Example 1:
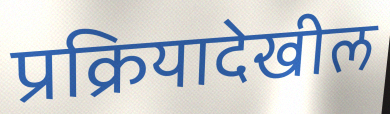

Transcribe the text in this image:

प्रक्रियादेखील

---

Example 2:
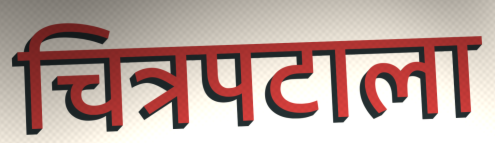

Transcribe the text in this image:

चित्रपटाला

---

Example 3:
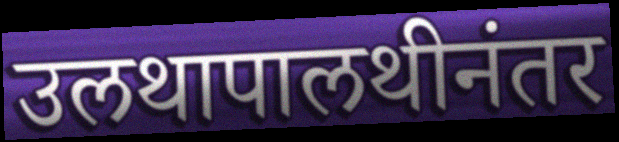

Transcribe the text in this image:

उलथापालथीनंतर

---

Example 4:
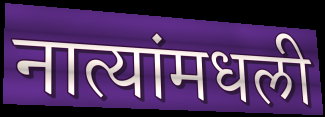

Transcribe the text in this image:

नात्यांमधली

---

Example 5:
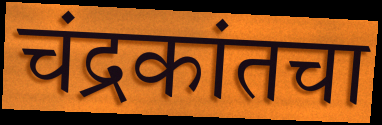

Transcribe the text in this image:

चंद्रकांतचा